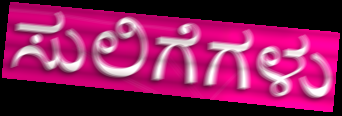
ಸುಲಿಗೆಗಳು